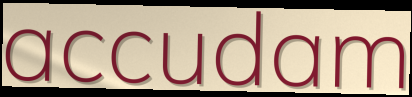
accudam